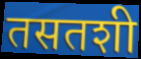
तसतशी